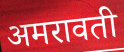
अमरावती